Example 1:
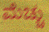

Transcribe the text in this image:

ಮೆಚ್ಚು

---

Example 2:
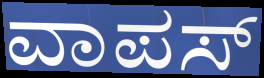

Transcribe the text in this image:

ವಾಪಸ್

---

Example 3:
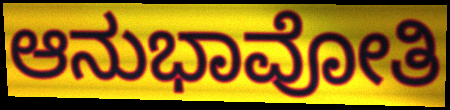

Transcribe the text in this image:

ಆನುಭಾವೋತಿ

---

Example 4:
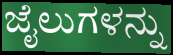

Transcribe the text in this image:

ಜೈಲುಗಳನ್ನು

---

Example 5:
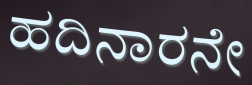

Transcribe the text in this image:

ಹದಿನಾರನೇ